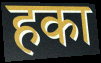
हका